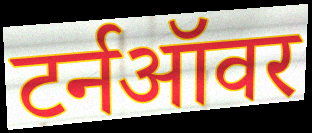
टर्नऑवर